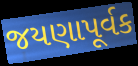
જયણાપૂર્વક